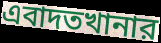
এবাদতখানার